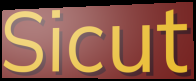
Sicut